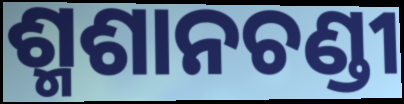
ଶ୍ମଶାନଚଣ୍ଡୀ